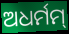
ଅଧର୍ମମ୍